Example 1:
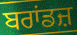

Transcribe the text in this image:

ਬਰਾਂਡਜ਼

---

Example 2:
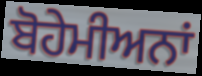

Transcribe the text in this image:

ਬੋਹੇਮੀਅਨਾਂ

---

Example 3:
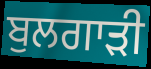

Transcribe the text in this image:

ਬੁਲਗਾੜੀ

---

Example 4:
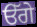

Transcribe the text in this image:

ੳੱਗੇ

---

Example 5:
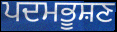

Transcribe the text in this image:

ਪਦਮਭੂਸ਼ਣ